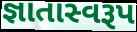
જ્ઞાતાસ્વરૂપ